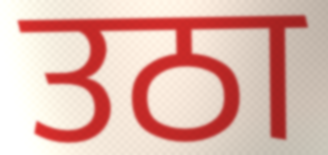
उठा